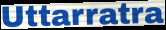
Uttarratra